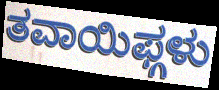
ತವಾಯಿಫ್ಗಳು